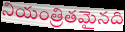
నియంత్రితమైనది